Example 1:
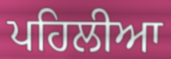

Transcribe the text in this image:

ਪਹਿਲੀਆ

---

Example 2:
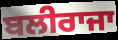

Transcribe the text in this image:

ਬਲੀਰਾਜਾ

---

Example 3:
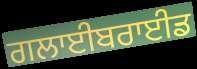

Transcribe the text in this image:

ਗਲਾਈਬਰਾਈਡ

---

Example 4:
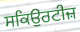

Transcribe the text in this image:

ਸਕਿਉਰਟੀਜ਼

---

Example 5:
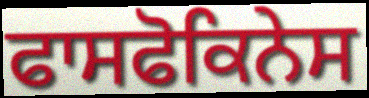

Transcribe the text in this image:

ਫਾਸਫੋਕਿਨੇਸ